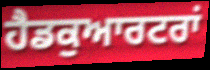
ਹੈਡਕੁਆਰਟਰਾਂ